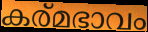
കര്മഭാവം